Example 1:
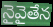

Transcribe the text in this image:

నైవైతేన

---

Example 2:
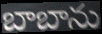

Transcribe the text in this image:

బాబాను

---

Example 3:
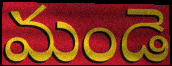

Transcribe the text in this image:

మండె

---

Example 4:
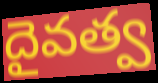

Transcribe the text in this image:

దైవత్వ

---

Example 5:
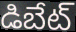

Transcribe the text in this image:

డిబేట్